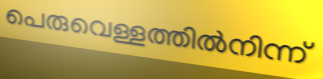
പെരുവെള്ളത്തിൽനിന്ന്